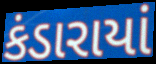
કંડારાયાં